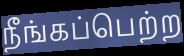
நீங்கப்பெற்ற